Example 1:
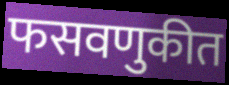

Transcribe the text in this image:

फसवणुकीत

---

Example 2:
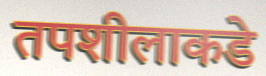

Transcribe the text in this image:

तपशीलाकडे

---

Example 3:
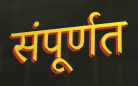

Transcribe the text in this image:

संपूर्णत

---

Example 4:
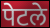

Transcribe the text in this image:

पेटले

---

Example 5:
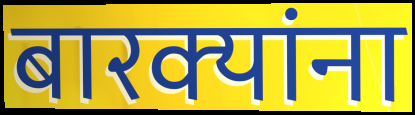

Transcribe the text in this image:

बारक्यांना